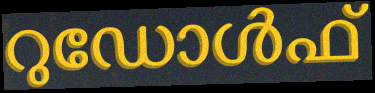
റുഡോൾഫ്